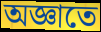
অজ্ঞাতে